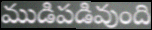
ముడిపడివుంది